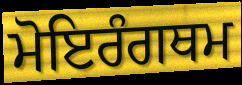
ਮੋਇਰੰਗਥਮ